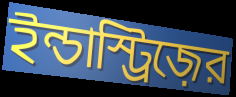
ইন্ডাস্ট্রিজ়ের